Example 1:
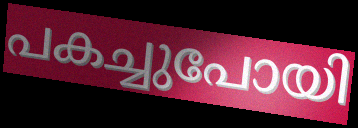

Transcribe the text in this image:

പകച്ചുപോയി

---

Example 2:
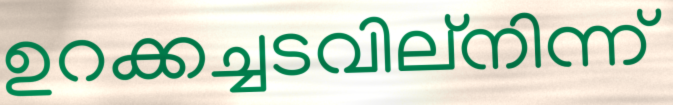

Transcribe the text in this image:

ഉറക്കച്ചടവില്നിന്ന്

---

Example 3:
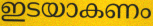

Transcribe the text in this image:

ഇടയാകണം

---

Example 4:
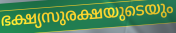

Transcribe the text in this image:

ഭക്ഷ്യസുരക്ഷയുടെയും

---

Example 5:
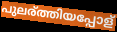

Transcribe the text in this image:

പുലര്ത്തിയപ്പോള്